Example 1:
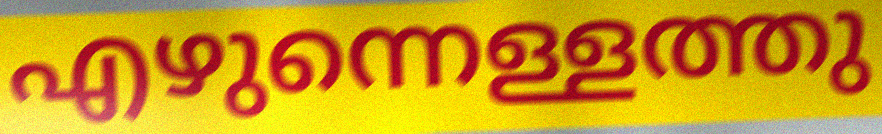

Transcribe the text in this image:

എഴുന്നെള്ളത്തു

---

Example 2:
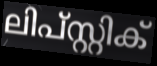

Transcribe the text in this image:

ലിപ്സ്റ്റിക്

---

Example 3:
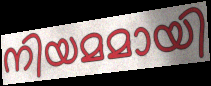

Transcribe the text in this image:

നിയമമായി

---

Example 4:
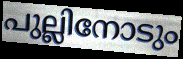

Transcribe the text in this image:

പുല്ലിനോടും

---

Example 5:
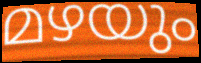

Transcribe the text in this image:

മഴയും